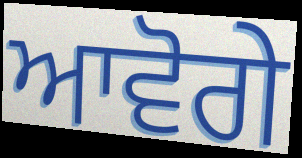
ਆਵੋਗੇ